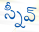
స్నీవ్